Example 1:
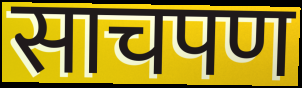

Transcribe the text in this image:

साचपण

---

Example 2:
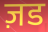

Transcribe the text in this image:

ज़ड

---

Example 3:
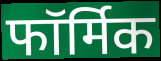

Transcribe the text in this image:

फॉर्मिक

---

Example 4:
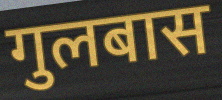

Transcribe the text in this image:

गुलबास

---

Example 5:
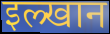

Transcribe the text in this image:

इल्खान